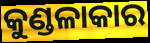
କୁଣ୍ଡଳାକାର